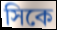
সিকে